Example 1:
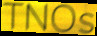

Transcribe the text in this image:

TNOs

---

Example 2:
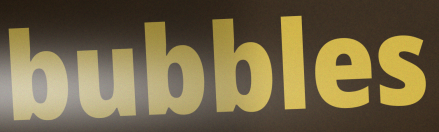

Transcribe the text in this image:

bubbles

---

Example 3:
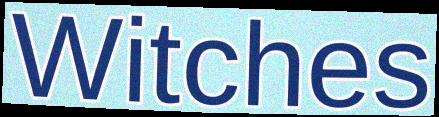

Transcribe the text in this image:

Witches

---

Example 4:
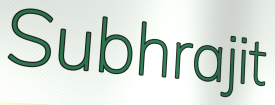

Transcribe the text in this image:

Subhrajit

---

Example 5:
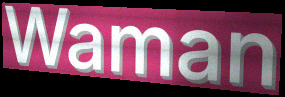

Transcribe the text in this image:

Waman